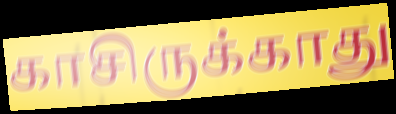
காசிருக்காது